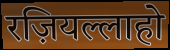
रज़ियल्लाहो